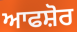
ਆਫਸ਼ੋਰ